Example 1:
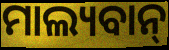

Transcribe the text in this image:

ମାଲ୍ୟବାନ୍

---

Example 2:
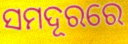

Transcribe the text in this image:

ସମଦୂରରେ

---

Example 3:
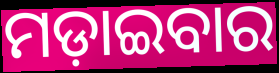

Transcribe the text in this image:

ମଡ଼ାଇବାର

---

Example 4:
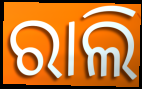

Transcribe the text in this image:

ରାଲି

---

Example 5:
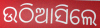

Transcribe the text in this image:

ଉଠିଆସିଲେ